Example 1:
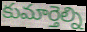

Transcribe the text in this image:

కుమార్తెల్ని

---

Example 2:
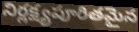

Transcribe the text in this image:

నిర్లక్ష్యపూరితమైన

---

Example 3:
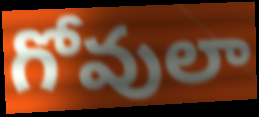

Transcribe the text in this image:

గోవులా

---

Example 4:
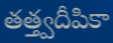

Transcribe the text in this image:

తత్త్వదీపికా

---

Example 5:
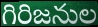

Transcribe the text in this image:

గిరిజనుల